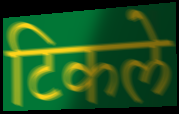
टिकले